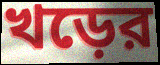
খড়ের